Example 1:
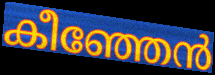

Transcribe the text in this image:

കീഞ്ഞേൻ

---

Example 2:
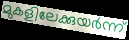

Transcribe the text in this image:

മുകളിലേക്കുയർന്ന്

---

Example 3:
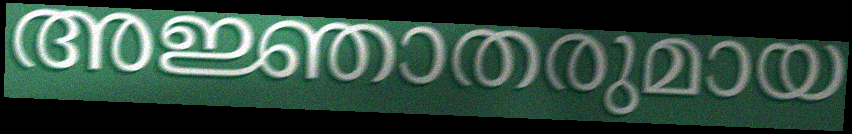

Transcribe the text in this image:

അജ്ഞാതരുമായ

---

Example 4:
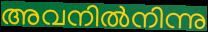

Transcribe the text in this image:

അവനിൽനിന്നു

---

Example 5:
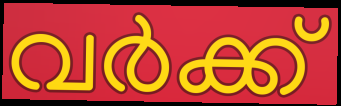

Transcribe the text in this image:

വർക്ക്